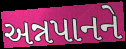
અન્નપાનને